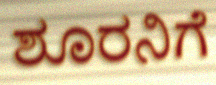
ಶೂರನಿಗೆ